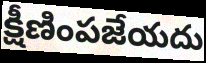
క్షీణింపజేయదు